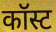
कॉस्ट